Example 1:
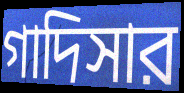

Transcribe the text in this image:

গাদিসার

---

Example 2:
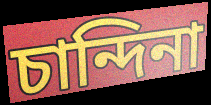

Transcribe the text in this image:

চান্দিনা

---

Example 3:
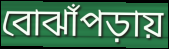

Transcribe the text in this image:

বোঝাঁপড়ায়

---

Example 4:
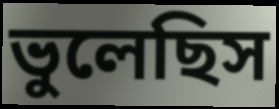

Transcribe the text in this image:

ভুলেছিস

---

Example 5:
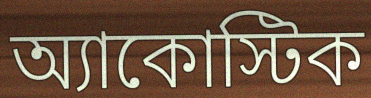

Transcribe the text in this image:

অ্যাকোস্টিক